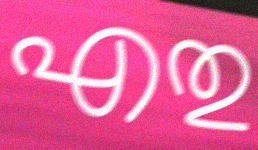
എതു